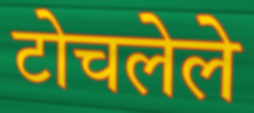
टोचलेले